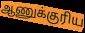
ஆணுக்குரிய